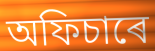
অফিচাৰে